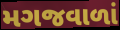
મગજવાળાં